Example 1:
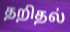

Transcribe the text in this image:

தறிதல்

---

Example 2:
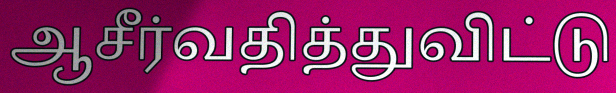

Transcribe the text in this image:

ஆசீர்வதித்துவிட்டு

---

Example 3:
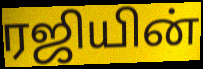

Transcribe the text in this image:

ரஜியின்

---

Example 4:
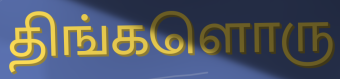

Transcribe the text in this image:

திங்களொரு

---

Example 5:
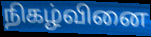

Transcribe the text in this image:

நிகழ்வினை